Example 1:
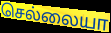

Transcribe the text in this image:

செல்லையா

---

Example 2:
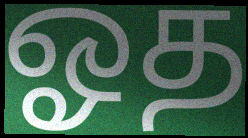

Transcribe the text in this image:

ஓத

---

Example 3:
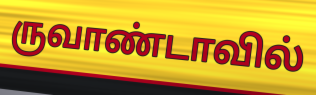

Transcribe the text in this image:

ருவாண்டாவில்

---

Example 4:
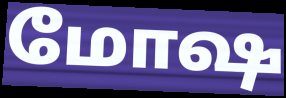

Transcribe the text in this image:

மோஷ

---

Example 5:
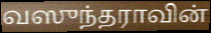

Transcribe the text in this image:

வஸுந்தராவின்